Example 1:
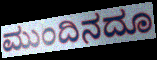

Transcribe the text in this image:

ಮುಂದಿನದೂ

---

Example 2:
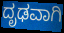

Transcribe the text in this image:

ದೃಢವಾಗಿ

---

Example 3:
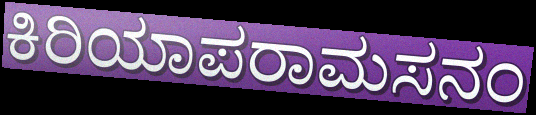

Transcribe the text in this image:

ಕಿರಿಯಾಪರಾಮಸನಂ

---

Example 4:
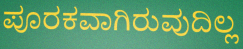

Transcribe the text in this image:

ಪೂರಕವಾಗಿರುವುದಿಲ್ಲ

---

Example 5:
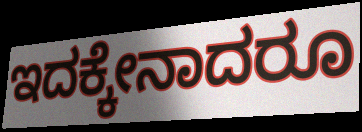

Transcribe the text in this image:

ಇದಕ್ಕೇನಾದರೂ